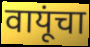
वायूंचा